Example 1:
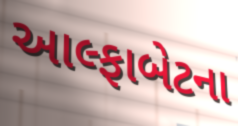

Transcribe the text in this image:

આલ્ફાબેટના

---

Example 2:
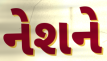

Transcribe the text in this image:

નેશને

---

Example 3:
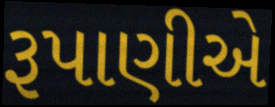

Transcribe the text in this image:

રૂપાણીએ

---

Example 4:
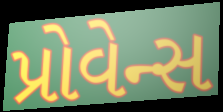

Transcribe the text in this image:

પ્રોવેન્સ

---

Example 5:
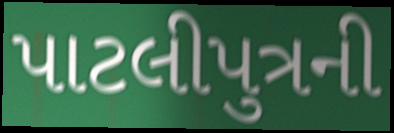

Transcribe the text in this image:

પાટલીપુત્રની